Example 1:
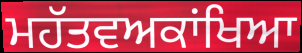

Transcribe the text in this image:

ਮਹੱਤਵਅਕਾਂਖਿਆ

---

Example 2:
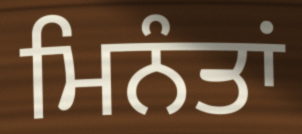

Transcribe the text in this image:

ਮਿਨੰਤਾਂ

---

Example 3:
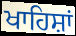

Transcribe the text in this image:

ਖਾਹਿਸ਼ਾਂ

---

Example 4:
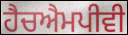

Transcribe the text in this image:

ਹੈਚਐਮਪੀਵੀ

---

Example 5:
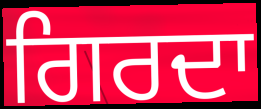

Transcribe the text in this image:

ਗਿਰਦਾ